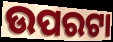
ଉପରଟା